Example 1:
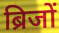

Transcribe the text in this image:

ब्रिजों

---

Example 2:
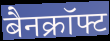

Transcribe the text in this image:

बैनक्रॉफ्ट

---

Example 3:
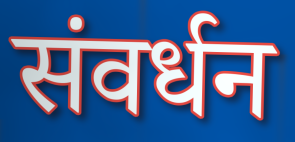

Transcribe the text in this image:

संवर्धन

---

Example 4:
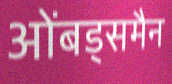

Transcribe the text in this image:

ओंबड्समैन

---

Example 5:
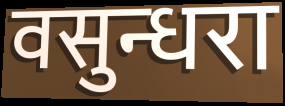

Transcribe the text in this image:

वसुन्धरा